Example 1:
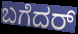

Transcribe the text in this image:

ಬಗೆದರ್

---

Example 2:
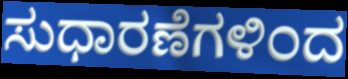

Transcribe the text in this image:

ಸುಧಾರಣೆಗಳಿಂದ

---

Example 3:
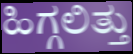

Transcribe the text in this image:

ಹಿಗ್ಗಲಿತ್ತು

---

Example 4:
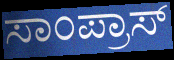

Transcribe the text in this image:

ಸಾಂಪ್ರಾಸ್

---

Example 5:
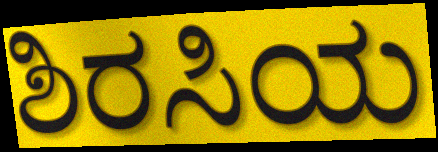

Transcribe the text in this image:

ಶಿರಸಿಯ